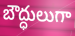
బౌద్ధులుగా